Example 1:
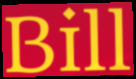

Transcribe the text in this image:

Bill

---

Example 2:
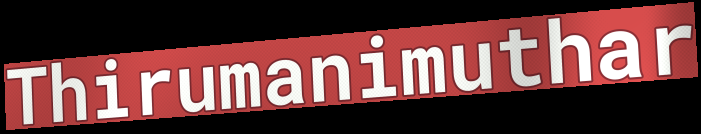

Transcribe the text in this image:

Thirumanimuthar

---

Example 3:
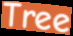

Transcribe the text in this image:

Tree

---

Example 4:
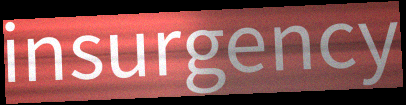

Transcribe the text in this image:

insurgency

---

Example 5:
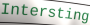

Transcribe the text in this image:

Intersting